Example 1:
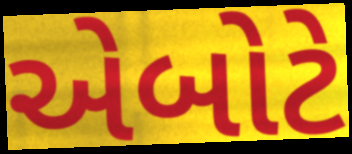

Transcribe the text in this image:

એબોટે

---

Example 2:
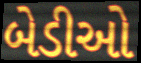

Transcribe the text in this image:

બેડીઓ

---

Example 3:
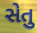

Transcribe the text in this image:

સેતુ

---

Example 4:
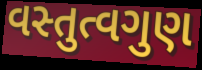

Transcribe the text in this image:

વસ્તુત્વગુણ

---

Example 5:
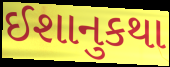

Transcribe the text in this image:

ઈશાનુકથા